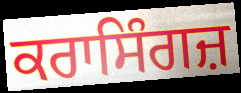
ਕਰਾਸਿੰਗਜ਼